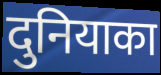
दुनियाका